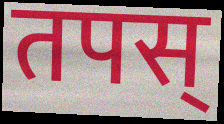
तपस्